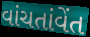
વાંચતાંવેંત